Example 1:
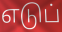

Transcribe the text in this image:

எடுப்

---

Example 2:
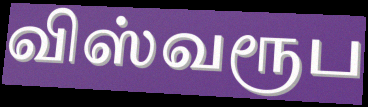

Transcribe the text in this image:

விஸ்வரூப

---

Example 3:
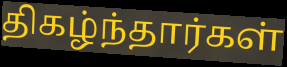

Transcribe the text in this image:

திகழ்ந்தார்கள்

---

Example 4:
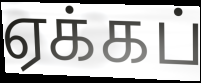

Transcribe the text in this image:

ஏக்கப்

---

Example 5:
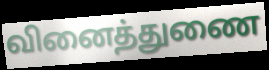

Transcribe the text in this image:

வினைத்துணை